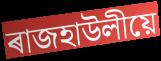
ৰাজহাউলীয়ে